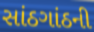
સાંઠગાંઠની